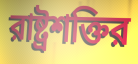
রাষ্ট্রশক্তির